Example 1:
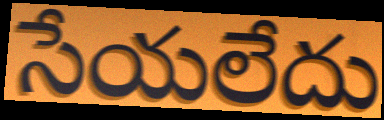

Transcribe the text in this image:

సేయలేదు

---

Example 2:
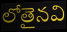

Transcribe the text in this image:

లోతైనవి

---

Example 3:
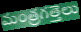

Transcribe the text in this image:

మంత్రగత్తెలు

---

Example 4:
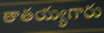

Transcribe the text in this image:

తాతయ్యగారు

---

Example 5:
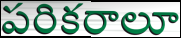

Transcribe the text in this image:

పరికరాలూ